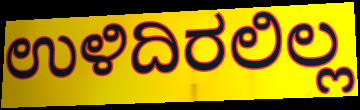
ಉಳಿದಿರಲಿಲ್ಲ